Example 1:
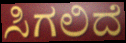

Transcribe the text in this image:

ಸಿಗಲಿದೆ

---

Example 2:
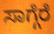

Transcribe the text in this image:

ಸಾಗ್ಗೆರೆ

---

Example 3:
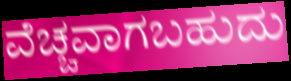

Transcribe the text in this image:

ವೆಚ್ಚವಾಗಬಹುದು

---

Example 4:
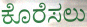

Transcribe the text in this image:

ಕೊರೆಸಲು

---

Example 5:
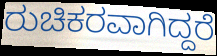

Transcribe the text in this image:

ರುಚಿಕರವಾಗಿದ್ದರೆ